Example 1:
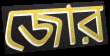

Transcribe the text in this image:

জোর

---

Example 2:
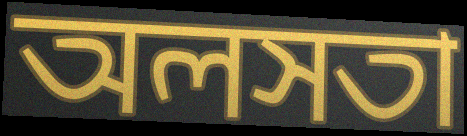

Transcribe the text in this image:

অলসতা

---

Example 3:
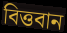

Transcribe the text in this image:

বিত্তবান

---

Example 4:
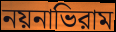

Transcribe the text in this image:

নয়নাভিরাম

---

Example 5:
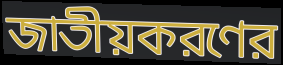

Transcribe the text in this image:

জাতীয়করণের